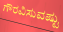
ಗೌರವಿಸುವಷ್ಟು